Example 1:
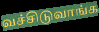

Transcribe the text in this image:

வச்சிடுவாங்க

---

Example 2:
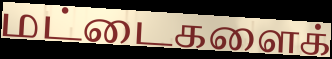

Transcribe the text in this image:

மட்டைகளைக்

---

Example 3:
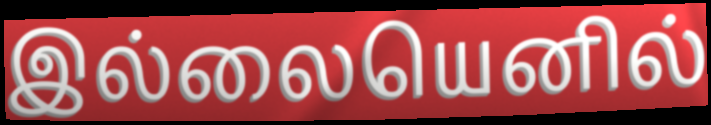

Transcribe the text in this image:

இல்லையெனில்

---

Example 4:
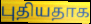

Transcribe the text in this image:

புதியதாக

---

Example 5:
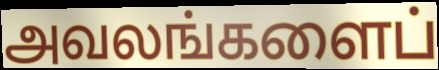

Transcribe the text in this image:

அவலங்களைப்